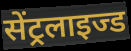
सेंट्रलाइज्ड